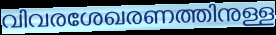
വിവരശേഖരണത്തിനുള്ള